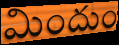
మిందుం